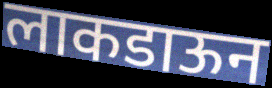
लाकडाऊन